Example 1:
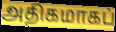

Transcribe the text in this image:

அதிகமாகப்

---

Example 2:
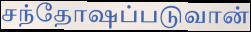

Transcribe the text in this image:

சந்தோஷப்படுவான்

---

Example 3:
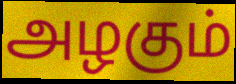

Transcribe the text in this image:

அழகும்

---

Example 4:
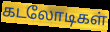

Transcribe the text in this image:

கடலோடிகள்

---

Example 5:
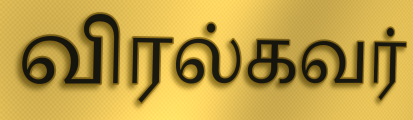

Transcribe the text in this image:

விரல்கவர்